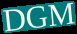
DGM